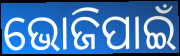
ଭୋଜିପାଇଁ